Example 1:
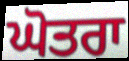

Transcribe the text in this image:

ਘੋਤਰਾ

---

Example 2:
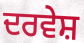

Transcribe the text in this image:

ਦਰਵੇਸ਼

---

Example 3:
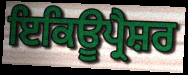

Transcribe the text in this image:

ਇਕਿਊਪ੍ਰੈਸ਼ਰ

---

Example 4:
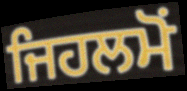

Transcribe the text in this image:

ਜਿਹਲਮੋਂ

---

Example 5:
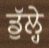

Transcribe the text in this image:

ਡੁੱਲ੍ਹੇ